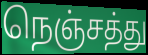
நெஞ்சத்து